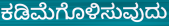
ಕಡಿಮೆಗೊಳಿಸುವುದು